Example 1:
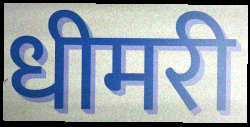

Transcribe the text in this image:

धीमरी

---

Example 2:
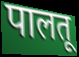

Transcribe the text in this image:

पालतू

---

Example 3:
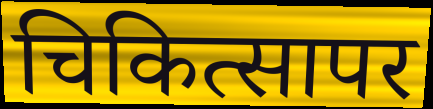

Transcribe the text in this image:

चिकित्सापर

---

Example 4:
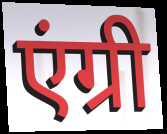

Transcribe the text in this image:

एंग्री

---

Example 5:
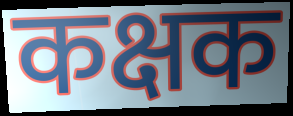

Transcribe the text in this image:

कक्षक